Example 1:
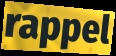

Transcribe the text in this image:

rappel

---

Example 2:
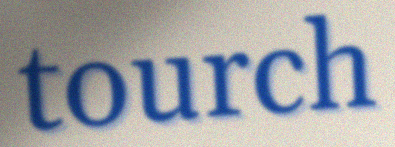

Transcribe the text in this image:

tourch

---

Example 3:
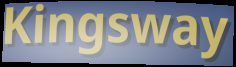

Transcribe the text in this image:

Kingsway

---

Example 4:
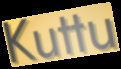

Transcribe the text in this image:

Kuttu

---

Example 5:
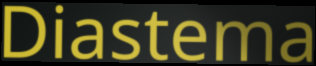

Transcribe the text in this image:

Diastema